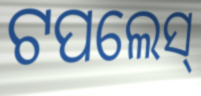
ଟପଲେସ୍